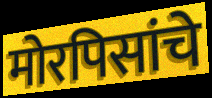
मोरपिसांचे